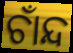
ଚାଁନ୍ଦ